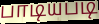
பாடியபடி